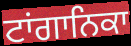
ਟਾਂਗਾਨਿਕਾ